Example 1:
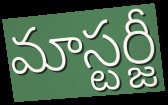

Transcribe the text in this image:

మాస్టర్జీ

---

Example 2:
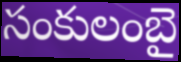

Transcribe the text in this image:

సంకులంబై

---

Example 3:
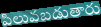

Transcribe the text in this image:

పిలువబడుతారు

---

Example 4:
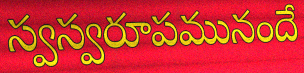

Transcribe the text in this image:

స్వస్వరూపమునందే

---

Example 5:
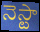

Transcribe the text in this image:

నెస్టా